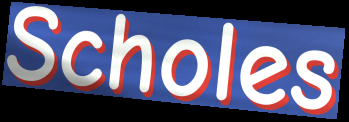
Scholes